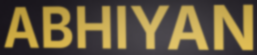
ABHIYAN